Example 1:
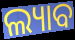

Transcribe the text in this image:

ଲ୍ୟାବ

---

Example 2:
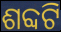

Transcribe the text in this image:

ଶବ୍ଦଟି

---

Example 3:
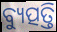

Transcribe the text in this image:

ବ୍ୟୁତ୍ପତ୍ତି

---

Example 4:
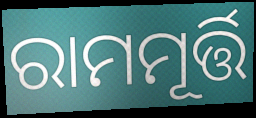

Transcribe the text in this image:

ରାମମୂର୍ତ୍ତି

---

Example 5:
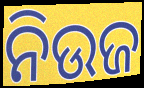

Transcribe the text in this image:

ନିଉଜ